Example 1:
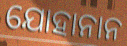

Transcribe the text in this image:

ଯୋହାନାନ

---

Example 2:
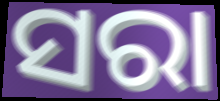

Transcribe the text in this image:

ସରା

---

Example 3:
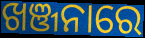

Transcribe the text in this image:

ଖଞ୍ଜନାରେ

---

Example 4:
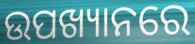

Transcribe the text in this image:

ଉପଖ୍ୟାନରେ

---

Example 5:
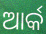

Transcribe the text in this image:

ଆର୍କ